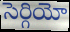
సెర్గియో